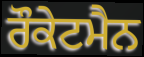
ਰੌਕੇਟਮੈਨ